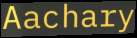
Aachary